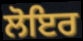
ਲੋਇਰ